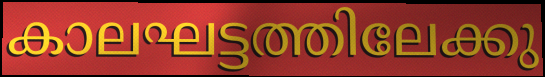
കാലഘട്ടത്തിലേക്കു